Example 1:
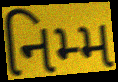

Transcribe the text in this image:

નિમ્મ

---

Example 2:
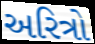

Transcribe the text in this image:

અરિત્રો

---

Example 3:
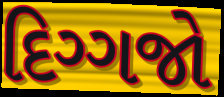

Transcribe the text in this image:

દિગ્ગજો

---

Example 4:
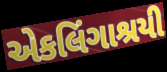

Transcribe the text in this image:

એકલિંગાશ્રયી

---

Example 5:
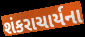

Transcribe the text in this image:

શંકરાચાર્યના